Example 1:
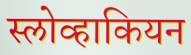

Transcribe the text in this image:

स्लोव्हाकियन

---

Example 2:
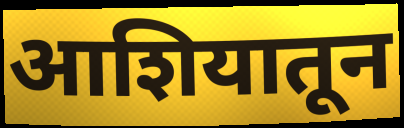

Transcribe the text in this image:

आशियातून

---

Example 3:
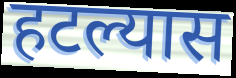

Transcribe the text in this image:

हटल्यास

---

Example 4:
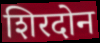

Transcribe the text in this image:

शिरदोन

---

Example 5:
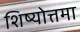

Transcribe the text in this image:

शिष्योत्तमा